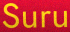
Suru